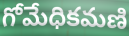
గోమేధికమణి